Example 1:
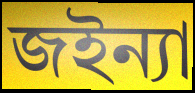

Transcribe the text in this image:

জইন্যা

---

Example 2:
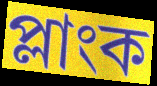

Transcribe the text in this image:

প্লাংক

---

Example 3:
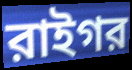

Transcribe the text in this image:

রাইগর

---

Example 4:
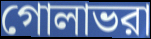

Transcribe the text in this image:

গোলাভরা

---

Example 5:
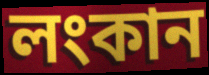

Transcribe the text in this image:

লংকান